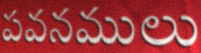
పవనములు